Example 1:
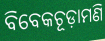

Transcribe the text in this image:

ବିବେକଚୂଡ଼ାମଣି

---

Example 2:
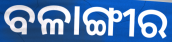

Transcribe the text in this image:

ବଳାଙ୍ଗୀର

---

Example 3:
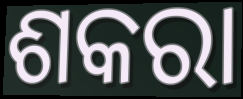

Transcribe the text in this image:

ଶକରା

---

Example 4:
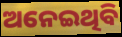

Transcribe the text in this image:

ଅନେଇଥିବି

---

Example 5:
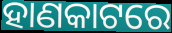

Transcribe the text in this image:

ହାଣକାଟରେ